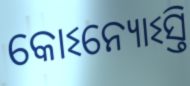
କୋଽନ୍ୟୋଽସ୍ତି